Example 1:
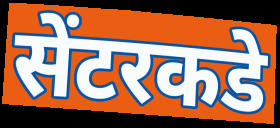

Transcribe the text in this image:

सेंटरकडे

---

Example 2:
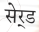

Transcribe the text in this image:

सेर्ड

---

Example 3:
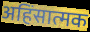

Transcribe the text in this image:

अहिंसात्मक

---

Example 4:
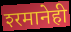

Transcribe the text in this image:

श्रमानेही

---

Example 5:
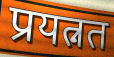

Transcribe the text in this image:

प्रयत्नत